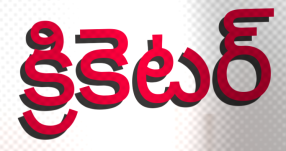
క్రికెటర్